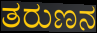
ತರುಣನ